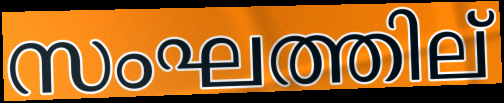
സംഘത്തില്